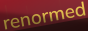
renormed